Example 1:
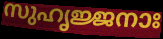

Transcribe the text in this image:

സുഹൃജ്ജനാഃ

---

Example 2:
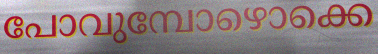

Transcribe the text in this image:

പോവുമ്പോഴൊക്കെ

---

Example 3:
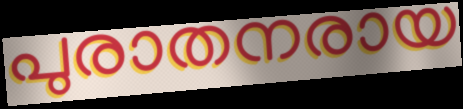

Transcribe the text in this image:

പുരാതനരായ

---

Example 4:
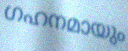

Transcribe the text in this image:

ഗഹനമായും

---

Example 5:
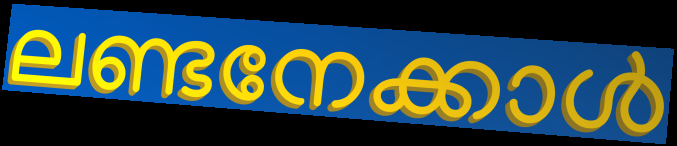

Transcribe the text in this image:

ലണ്ടനേക്കാൾ